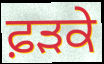
ਫ਼ਡ਼ਕੇ